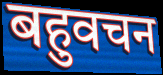
बहुवचन